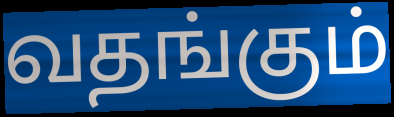
வதங்கும்